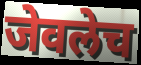
जेवलेच